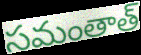
సమంతాత్